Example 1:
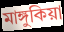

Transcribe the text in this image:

মাঙ্গুকিয়া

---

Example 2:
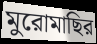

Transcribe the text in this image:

মুরোমাছির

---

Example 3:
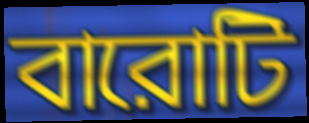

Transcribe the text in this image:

বারোটি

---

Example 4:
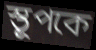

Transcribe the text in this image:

স্তূপকে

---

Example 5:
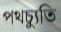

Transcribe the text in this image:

পথচ্যুতি